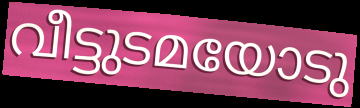
വീട്ടുടമയോടു